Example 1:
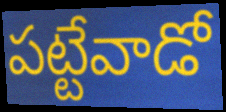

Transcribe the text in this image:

పట్టేవాడో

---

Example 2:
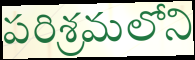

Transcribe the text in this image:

పరిశ్రమలోని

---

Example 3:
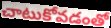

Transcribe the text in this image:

చాటుకోవడంతో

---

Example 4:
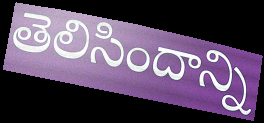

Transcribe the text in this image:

తెలిసిందాన్ని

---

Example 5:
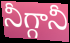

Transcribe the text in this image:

నీగ్గానీ